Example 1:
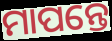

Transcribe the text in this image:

ମାପନ୍ତେ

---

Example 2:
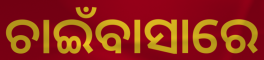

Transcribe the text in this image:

ଚାଇଁବାସାରେ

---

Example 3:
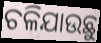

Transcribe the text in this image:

ଚଳିଯାଉଛୁ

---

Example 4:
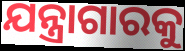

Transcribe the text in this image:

ଯନ୍ତ୍ରାଗାରକୁ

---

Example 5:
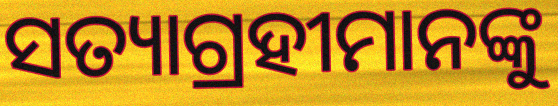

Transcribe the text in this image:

ସତ୍ୟାଗ୍ରହୀମାନଙ୍କୁ